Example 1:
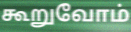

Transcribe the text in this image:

கூறுவோம்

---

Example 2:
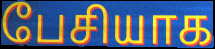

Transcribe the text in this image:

பேசியாக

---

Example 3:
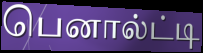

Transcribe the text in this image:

பெனால்ட்டி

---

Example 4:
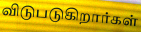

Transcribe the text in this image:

விடுபடுகிறார்கள்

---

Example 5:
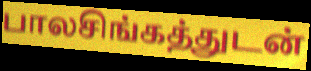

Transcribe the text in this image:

பாலசிங்கத்துடன்